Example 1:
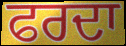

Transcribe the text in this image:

ਫਰਦਾ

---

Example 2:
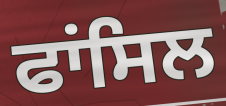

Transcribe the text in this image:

ਫਾਂਸਿਲ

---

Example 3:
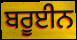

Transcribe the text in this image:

ਬਰੂਈਨ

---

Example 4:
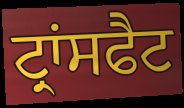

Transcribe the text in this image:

ਟ੍ਰਾਂਸਫੈਟ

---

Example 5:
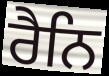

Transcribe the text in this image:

ਰੈਨਿ